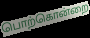
பொற்கொன்றை